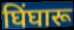
घिंघारू